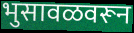
भुसावळवरून